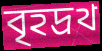
বৃহদ্রথ